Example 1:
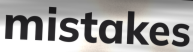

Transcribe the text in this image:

mistakes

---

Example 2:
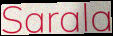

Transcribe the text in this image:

Sarala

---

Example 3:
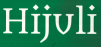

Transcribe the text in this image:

Hijuli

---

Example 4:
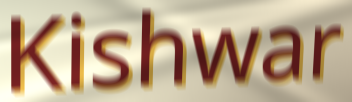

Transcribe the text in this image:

Kishwar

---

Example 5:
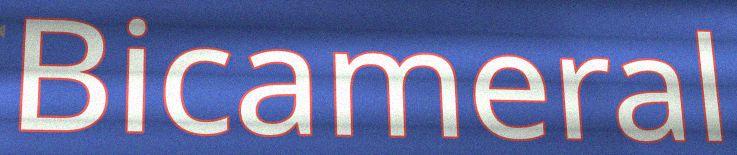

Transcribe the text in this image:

Bicameral